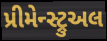
પ્રીમેન્સ્ટ્રુઅલ